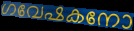
ഗവേഷകനോ